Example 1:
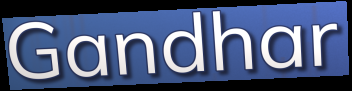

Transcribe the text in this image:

Gandhar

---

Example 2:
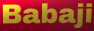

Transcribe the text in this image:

Babaji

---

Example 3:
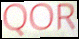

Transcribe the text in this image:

QOR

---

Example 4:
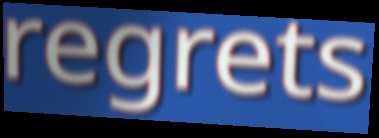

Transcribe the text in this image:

regrets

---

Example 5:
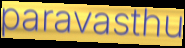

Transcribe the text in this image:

paravasthu